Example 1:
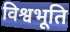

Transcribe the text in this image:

विश्वभूति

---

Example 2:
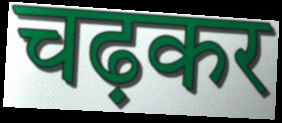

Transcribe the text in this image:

चढ़कर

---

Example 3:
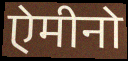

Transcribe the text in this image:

ऐमीनो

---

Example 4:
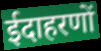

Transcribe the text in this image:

ईदाहरणों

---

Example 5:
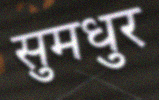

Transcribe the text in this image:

सुमधुर